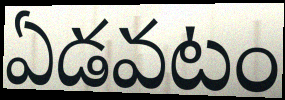
ఏడవటం